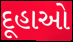
દૂહાઓ